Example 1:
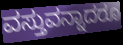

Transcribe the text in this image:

ವಸ್ತುವನ್ನಾದರೂ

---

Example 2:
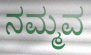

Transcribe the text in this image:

ನಮ್ಮವ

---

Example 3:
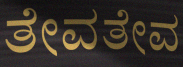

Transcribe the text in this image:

ತೇವತೇವ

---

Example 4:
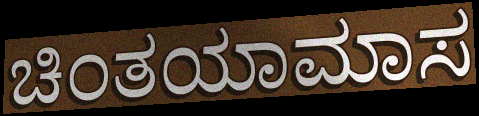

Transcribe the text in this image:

ಚಿಂತಯಾಮಾಸ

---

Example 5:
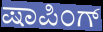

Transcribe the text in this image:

ಷಾಪಿಂಗ್